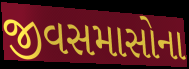
જીવસમાસોના